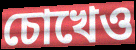
চোখেও